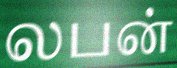
லபன்